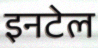
इनटेल